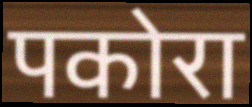
पकोरा